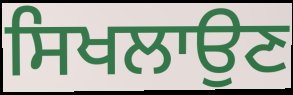
ਸਿਖਲਾਉਣ